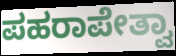
ಪಹರಾಪೇತ್ವಾ